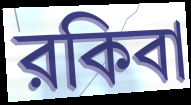
রকিবা